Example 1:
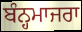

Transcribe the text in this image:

ਬੰਨ੍ਹਮਾਜਰਾ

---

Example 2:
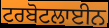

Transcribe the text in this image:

ਟਰਬੋਟਲਾਈਨ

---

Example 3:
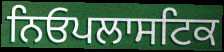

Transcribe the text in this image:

ਨਿਓਪਲਾਸਟਿਕ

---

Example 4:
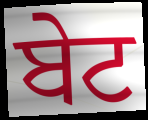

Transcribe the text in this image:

ਬੇਟ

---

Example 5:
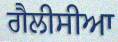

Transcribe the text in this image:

ਗੈਲੀਸੀਆ